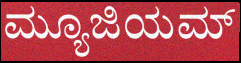
ಮ್ಯೂಜಿಯಮ್